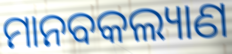
ମାନବକଲ୍ୟାଣ